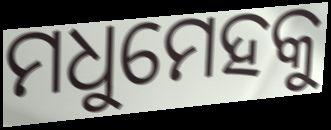
ମଧୁମେହକୁ